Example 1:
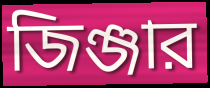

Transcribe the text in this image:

জিঞ্জার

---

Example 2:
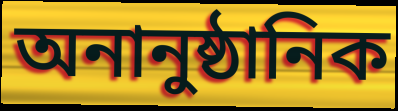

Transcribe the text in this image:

অনানুষ্ঠানিক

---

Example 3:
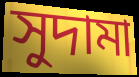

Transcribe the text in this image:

সুদামা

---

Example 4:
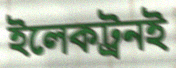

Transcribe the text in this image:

ইলেকট্রনই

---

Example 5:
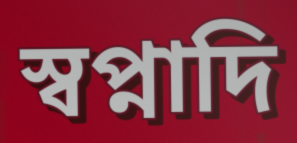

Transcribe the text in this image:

স্বপ্নাদি